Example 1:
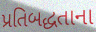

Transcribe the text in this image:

પ્રતિબદ્ધતાના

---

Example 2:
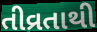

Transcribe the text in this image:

તીવ્રતાથી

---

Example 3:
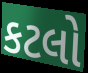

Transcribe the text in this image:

કટલો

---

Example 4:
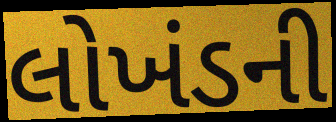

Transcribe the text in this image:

લોખંડની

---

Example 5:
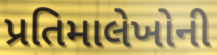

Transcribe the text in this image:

પ્રતિમાલેખોની